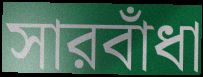
সারবাঁধা